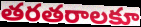
తరతరాలకూ